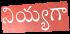
నియ్యగా